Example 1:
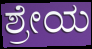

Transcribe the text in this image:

ಶ್ರೇಯ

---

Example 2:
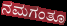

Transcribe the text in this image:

ನಮಗಂತೂ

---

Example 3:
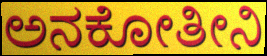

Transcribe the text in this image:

ಅನಕೋತೀನಿ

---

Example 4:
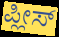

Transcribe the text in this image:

ಪ್ಲೀಸ್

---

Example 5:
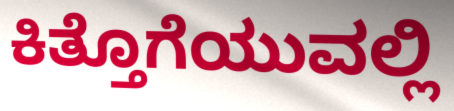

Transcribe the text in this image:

ಕಿತ್ತೊಗೆಯುವಲ್ಲಿ